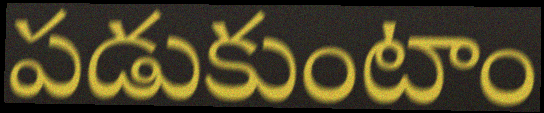
పడుకుంటాం